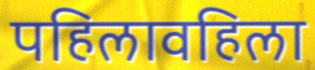
पहिलावहिला